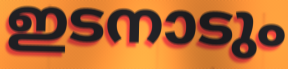
ഇടനാടും